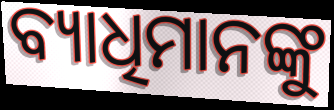
ବ୍ୟାଧିମାନଙ୍କୁ